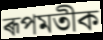
ৰূপমতীক